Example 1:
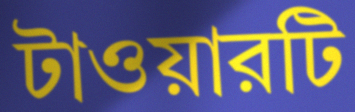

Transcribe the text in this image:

টাওয়ারটি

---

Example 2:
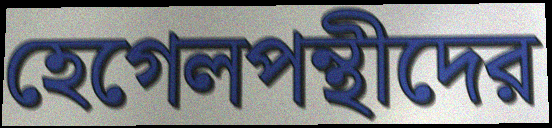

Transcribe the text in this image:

হেগেলপন্থীদের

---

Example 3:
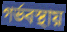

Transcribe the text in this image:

গর্ভবস্থায়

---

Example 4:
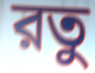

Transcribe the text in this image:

রতু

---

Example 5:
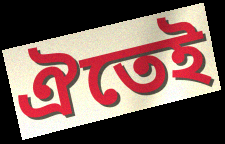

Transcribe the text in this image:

ঐতেই